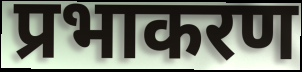
प्रभाकरण